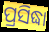
ପ୍ରସିଦ୍ଧା